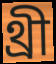
থ্রী